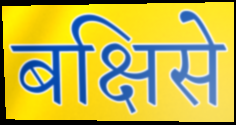
बक्षिसे